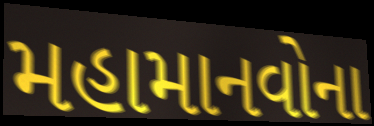
મહામાનવોના